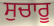
ਸੁਚਾਰੂ